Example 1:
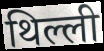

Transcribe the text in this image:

थिल्ली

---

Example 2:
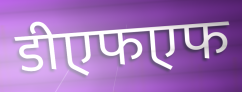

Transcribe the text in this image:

डीएफएफ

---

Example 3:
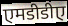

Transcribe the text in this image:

एमडीडीए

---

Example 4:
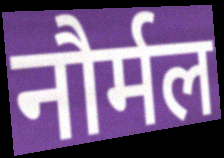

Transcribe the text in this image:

नौर्मल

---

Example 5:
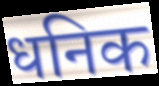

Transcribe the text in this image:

धनिक